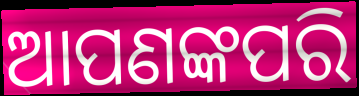
ଆପଣଙ୍କପରି